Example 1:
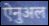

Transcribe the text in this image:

ऐनुअल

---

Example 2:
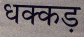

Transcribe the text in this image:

धक्कड़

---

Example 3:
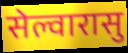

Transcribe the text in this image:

सेल्वारासु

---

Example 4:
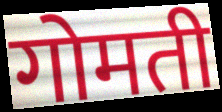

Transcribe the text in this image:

गोमती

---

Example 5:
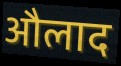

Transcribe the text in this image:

औलाद